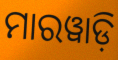
ମାରୱାଡ଼ି